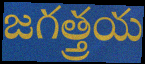
జగత్త్రయ